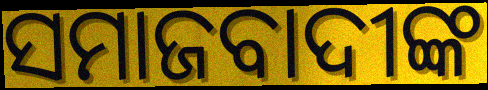
ସମାଜବାଦୀଙ୍କ